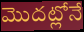
మొదట్లోనే